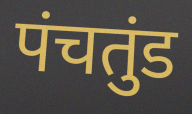
पंचतुंड